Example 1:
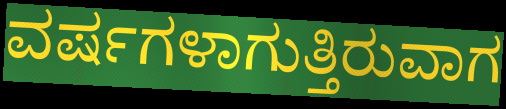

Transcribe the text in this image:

ವರ್ಷಗಳಾಗುತ್ತಿರುವಾಗ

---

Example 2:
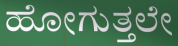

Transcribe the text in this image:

ಹೋಗುತ್ತಲೇ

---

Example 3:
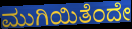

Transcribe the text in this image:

ಮುಗಿಯಿತೆಂದೇ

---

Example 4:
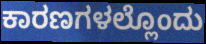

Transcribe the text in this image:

ಕಾರಣಗಳಲ್ಲೊಂದು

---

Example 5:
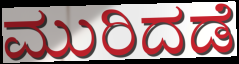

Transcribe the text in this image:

ಮುರಿದಡೆ